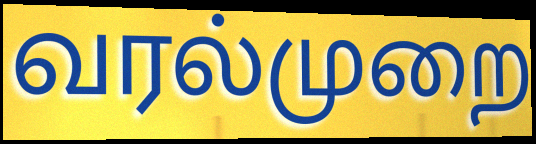
வரல்முறை